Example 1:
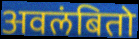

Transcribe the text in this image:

अवलंबितो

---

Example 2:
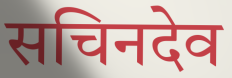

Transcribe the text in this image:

सचिनदेव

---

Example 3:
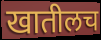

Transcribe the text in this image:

खातीलच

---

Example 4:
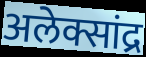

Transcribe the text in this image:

अलेक्सांद्र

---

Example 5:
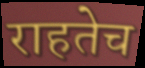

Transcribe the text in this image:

राहतेच